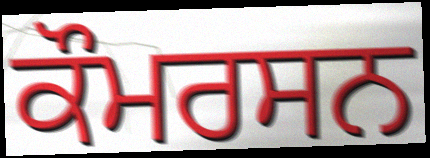
ਕੌਮਰਸਨ